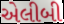
એલીબી